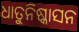
ଧାତୁନିଷ୍କାସନ